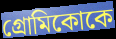
গ্রোমিকোকে